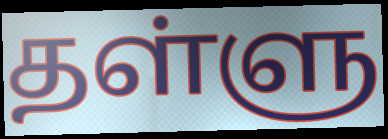
தள்ளு